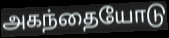
அகந்தையோடு